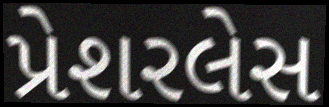
પ્રેશરલેસ